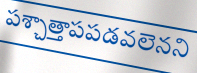
పశ్చాత్తాపపడవలెనని